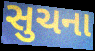
સુચના